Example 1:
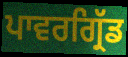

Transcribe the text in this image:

ਪਾਵਰਗ੍ਰਿੱਡ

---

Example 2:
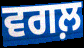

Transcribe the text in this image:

ਵਗਲ਼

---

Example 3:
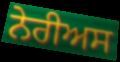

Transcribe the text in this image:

ਨੇਰੀਅਸ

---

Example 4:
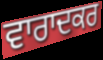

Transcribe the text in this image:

ਵਾਰਾਦਕਰ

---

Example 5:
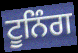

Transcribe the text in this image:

ਟੂਨਿੰਗ